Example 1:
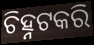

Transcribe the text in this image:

ଚିହ୍ନଟକରି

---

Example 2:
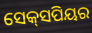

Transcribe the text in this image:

ସେକ୍‍ସପିୟର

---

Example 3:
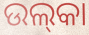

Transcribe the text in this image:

ଉଲ୍‌କା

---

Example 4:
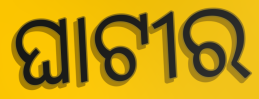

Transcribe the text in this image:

ଘାଟୀର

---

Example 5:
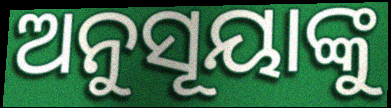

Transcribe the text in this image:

ଅନୁସୂୟାଙ୍କୁ